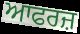
ਆਫਰਜ਼